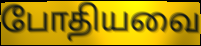
போதியவை